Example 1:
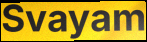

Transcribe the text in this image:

Svayam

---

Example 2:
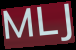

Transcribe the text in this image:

MLJ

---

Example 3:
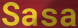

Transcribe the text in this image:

Sasa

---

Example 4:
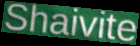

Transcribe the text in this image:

Shaivite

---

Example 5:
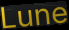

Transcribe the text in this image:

Lune